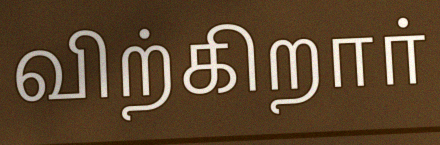
விற்கிறார்